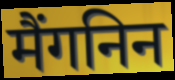
मैंगनिन